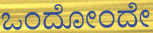
ಒಂದೋಂದೇ